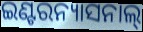
ଇଣ୍ଟରନ୍ୟାସନାଲ୍